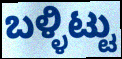
ಬಳ್ಳಿಟ್ಟು